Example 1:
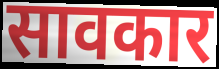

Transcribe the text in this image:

सावकार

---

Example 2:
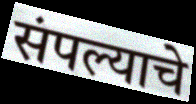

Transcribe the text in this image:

संपल्याचे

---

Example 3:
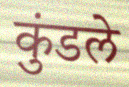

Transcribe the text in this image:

कुंडले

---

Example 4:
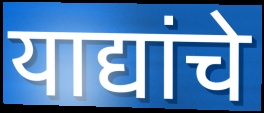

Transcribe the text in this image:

याद्यांचे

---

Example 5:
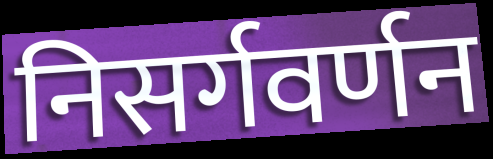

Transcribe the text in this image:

निसर्गवर्णन